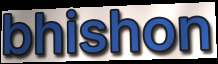
bhishon